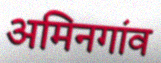
अमिनगांव